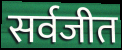
सर्वजीत